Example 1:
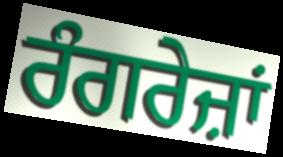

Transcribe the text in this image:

ਰੰਗਰੇਜ਼ਾਂ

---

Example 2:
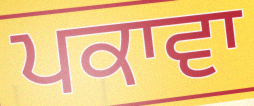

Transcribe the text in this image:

ਪਕਾਵਾ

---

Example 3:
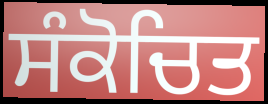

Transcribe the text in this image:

ਸੰਕੋਚਿਤ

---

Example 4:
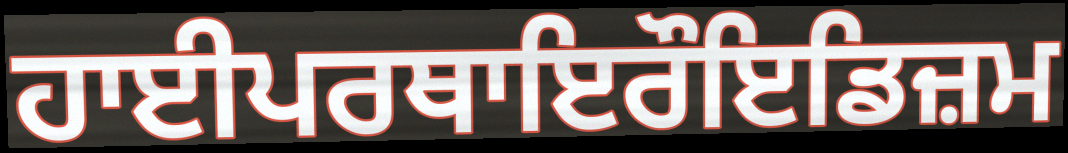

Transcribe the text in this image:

ਹਾਈਪਰਥਾਇਰੌਇਡਿਜ਼ਮ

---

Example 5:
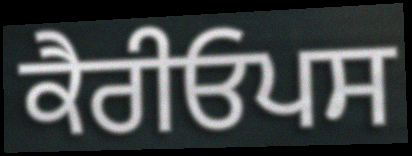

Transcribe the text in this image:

ਕੈਰੀਓਪਸ